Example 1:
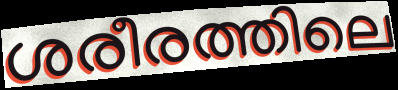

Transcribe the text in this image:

ശരീരത്തിലെ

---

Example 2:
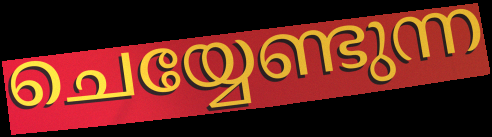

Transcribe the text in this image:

ചെയ്യേണ്ടുന്ന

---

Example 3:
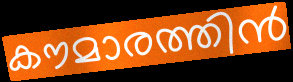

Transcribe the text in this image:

കൗമാരത്തിൻ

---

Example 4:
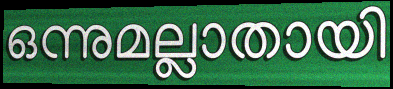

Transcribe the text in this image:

ഒന്നുമല്ലാതായി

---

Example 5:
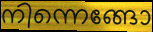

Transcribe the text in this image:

നിന്നെങ്ങോ